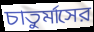
চাতুর্মাসের